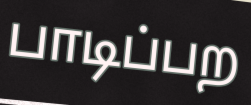
பாடிப்பற